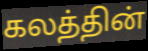
கலத்தின்